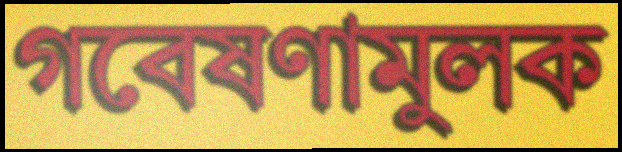
গবেষণামুলক